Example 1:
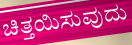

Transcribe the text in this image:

ಚಿತ್ತಯಿಸುವುದು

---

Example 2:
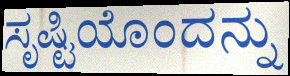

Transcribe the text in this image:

ಸೃಷ್ಟಿಯೊಂದನ್ನು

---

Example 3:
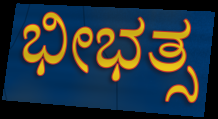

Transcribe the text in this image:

ಭೀಭತ್ಸ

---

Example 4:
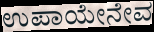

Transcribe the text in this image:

ಉಪಾಯೇನೇವ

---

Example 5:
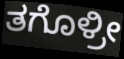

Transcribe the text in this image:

ತಗೊಳ್ರೀ